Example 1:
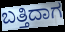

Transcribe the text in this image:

ಬತ್ತಿದಾಗ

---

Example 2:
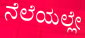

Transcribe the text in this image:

ನೆಲೆಯಲ್ಲೇ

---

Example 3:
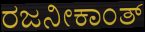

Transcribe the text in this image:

ರಜನೀಕಾಂತ್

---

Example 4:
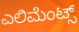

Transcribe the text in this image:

ಎಲಿಮೆಂಟ್ಸ್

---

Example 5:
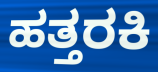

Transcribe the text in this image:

ಹತ್ತರಕಿ